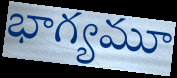
భాగ్యమూ